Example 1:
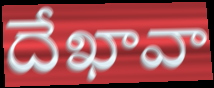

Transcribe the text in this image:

దేఖావా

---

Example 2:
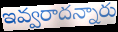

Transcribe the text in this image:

ఇవ్వరాదన్నారు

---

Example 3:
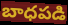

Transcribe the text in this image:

బాధపడి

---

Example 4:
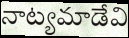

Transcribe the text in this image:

నాట్యమాడేవి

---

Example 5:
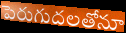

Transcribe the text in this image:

పెరుగుదలతోనూ